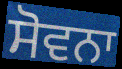
ਸੋਵਨਾ